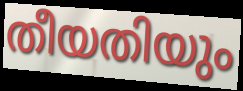
തീയതിയും